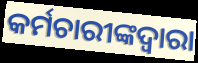
କର୍ମଚାରୀଙ୍କଦ୍ୱାରା